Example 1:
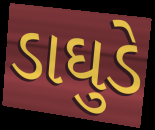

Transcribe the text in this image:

ડાઘુડે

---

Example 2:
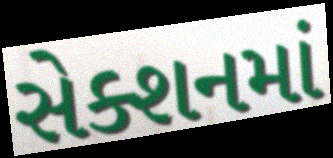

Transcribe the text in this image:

સેક્શનમાં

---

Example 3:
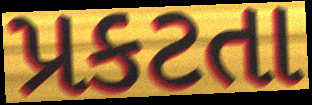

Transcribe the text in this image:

પ્રકટતા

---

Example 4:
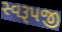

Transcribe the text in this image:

સ્વરૂપજી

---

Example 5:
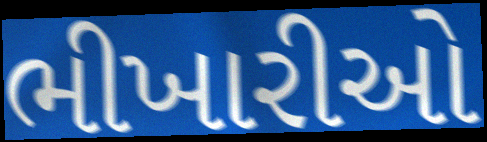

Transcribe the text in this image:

ભીખારીઓ